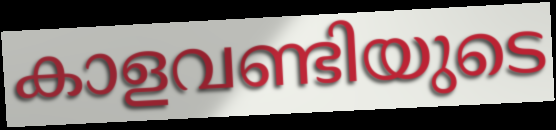
കാളവണ്ടിയുടെ